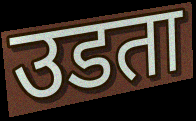
उडता